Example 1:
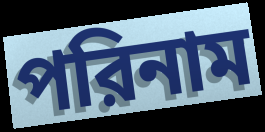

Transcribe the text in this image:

পরিনাম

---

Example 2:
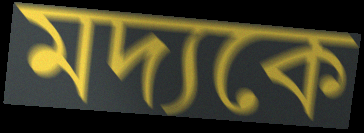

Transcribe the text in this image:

মদ্যকে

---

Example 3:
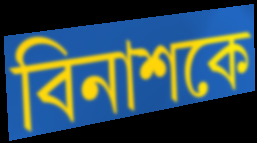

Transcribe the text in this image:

বিনাশকে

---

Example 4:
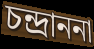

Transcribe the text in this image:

চন্দ্রাননা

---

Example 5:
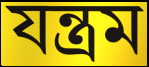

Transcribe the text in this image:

যন্ত্রম